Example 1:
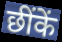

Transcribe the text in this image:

छींकें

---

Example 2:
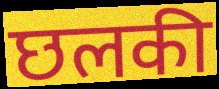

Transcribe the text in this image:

छलकी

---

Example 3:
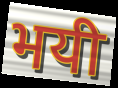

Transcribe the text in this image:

भयी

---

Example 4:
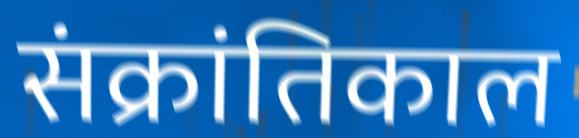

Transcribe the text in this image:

संक्रांतिकाल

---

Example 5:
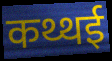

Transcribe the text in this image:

कथ्थई